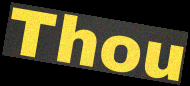
Thou